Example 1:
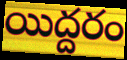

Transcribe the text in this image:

యిద్దరం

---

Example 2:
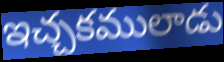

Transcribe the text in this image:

ఇచ్చకములాడు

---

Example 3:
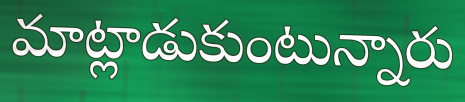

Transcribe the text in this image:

మాట్లాడుకుంటున్నారు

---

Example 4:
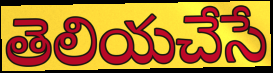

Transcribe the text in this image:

తెలియచేసే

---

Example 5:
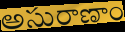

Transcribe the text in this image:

అసురాణాం